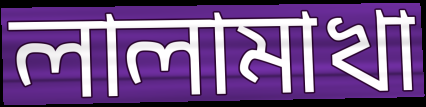
লালামাখা